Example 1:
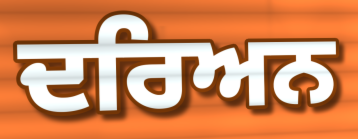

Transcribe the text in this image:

ਦਰਿਅਨ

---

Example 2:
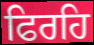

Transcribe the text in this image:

ਫਿਰਹਿ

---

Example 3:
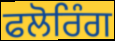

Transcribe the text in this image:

ਫਲੋਰਿੰਗ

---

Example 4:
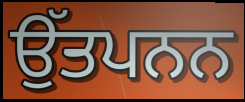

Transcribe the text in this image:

ਉੱਤਪਨਨ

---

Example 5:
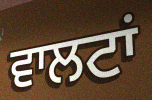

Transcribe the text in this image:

ਵਾਲਟਾਂ